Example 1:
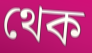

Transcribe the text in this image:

থেক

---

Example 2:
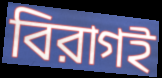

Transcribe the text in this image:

বিরাগই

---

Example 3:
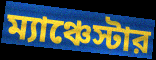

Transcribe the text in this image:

ম্যাঞ্চেস্টার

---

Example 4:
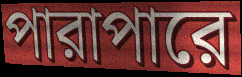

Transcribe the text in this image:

পারাপারে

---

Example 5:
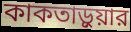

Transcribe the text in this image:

কাকতাড়ুয়ার